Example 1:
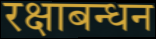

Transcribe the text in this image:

रक्षाबन्धन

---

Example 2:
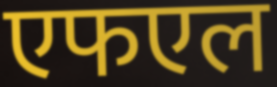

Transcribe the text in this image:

एफएल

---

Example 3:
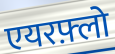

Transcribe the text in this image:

एयरफ़्लो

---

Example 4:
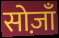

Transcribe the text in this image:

सोज़ाँ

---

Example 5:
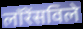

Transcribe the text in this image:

लॉरेंसविले